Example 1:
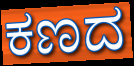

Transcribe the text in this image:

ಕಣದ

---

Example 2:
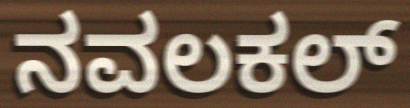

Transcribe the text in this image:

ನವಲಕಲ್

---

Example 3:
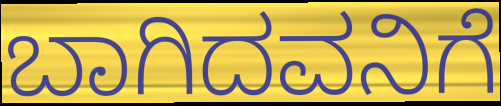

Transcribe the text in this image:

ಬಾಗಿದವನಿಗೆ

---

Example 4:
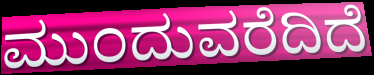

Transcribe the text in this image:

ಮುಂದುವರೆದಿದೆ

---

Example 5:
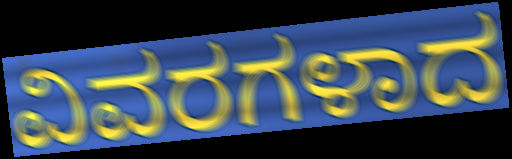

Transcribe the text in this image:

ವಿವರಗಳಾದ